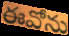
ఈవోను